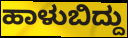
ಹಾಳುಬಿದ್ದು